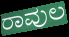
ರಾವುಲ